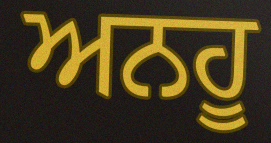
ਅਨਹੂ